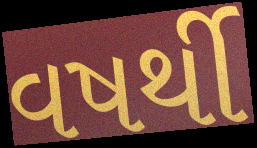
વષર્થી